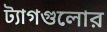
ট্যাগগুলোর